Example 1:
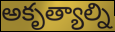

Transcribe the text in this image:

అకృత్యాల్ని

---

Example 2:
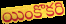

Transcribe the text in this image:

యింకొకరి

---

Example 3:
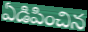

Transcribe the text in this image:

ఏడిపించిన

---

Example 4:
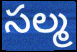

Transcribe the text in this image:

సల్మ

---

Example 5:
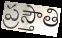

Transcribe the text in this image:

ప్రస్తౌతి